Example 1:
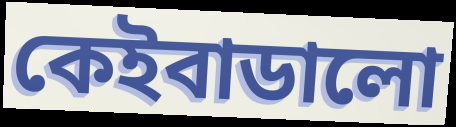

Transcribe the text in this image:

কেইবাডালো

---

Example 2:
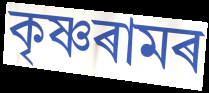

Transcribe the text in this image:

কৃষ্ণৰামৰ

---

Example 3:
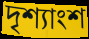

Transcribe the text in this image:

দৃশ্যাংশ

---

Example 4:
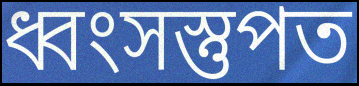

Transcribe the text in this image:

ধ্বংসস্তুপত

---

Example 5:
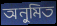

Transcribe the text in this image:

অনুমিত